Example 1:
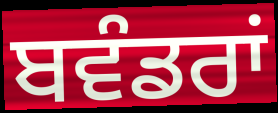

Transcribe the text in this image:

ਬਵੰਡਰਾਂ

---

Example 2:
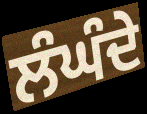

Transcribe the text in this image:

ਲੰਘੰਦੇ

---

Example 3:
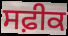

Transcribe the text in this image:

ਸਫ਼ੀਕ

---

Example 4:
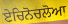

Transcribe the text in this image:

ਏਚਿਨੋਚਲੋਆ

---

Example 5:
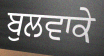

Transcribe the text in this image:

ਬੁਲਵਾਕੇ